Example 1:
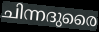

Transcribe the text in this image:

ചിന്നദുരൈ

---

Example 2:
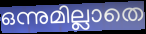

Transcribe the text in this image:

ഒന്നുമില്ലാതെ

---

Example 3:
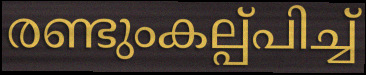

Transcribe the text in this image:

രണ്ടുംകല്പ്പിച്ച്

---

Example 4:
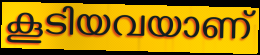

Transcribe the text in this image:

കൂടിയവയാണ്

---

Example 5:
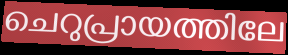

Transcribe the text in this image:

ചെറുപ്രായത്തിലേ